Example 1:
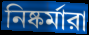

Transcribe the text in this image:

নিষ্কর্মারা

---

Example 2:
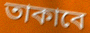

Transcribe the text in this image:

তাকাবে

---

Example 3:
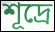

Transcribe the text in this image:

শূদ্রে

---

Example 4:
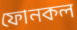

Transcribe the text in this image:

ফোনকল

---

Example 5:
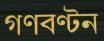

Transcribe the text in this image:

গণবণ্টন